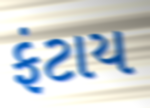
ફંટાય